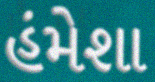
હંમેશા